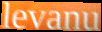
levanu